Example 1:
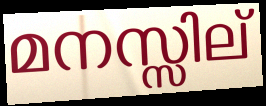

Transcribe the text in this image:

മനസ്സില്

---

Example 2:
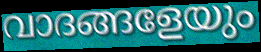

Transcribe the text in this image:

വാദങ്ങളേയും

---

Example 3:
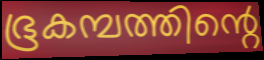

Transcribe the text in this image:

ഭൂകമ്പത്തിന്റെ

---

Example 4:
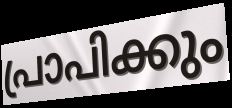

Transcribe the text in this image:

പ്രാപിക്കും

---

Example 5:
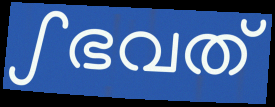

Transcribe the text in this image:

ഽഭവത്